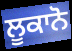
ਲੂਕਾਨੋ